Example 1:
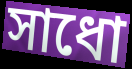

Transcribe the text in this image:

সাধো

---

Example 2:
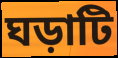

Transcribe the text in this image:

ঘড়াটি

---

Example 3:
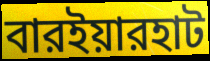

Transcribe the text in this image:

বারইয়ারহাট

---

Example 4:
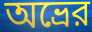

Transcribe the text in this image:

অভ্রের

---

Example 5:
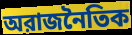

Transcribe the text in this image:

অরাজনৈতিক